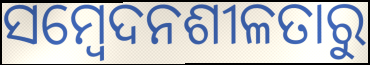
ସମ୍ବେଦନଶୀଳତାରୁ